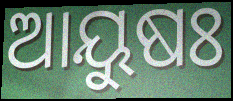
ଆୟୁଷଃ